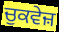
ਚੁਕਵੇਜ਼